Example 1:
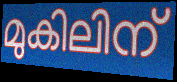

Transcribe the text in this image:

മുകിലിന്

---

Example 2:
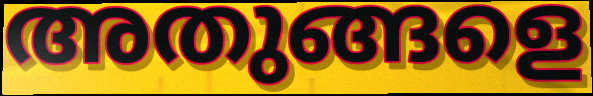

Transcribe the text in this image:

അതുങ്ങളെ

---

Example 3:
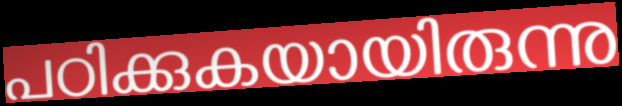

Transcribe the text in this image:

പഠിക്കുകയായിരുന്നു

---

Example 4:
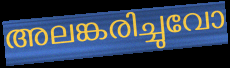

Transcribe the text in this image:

അലങ്കരിച്ചുവോ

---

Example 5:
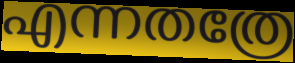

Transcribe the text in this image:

എന്നതത്രേ